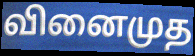
வினைமுத